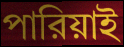
পারিয়াই